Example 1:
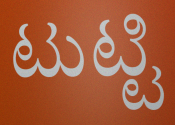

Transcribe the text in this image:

ಟುಟ್ಟಿ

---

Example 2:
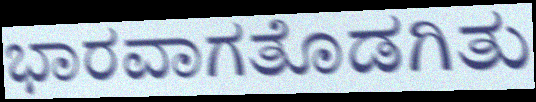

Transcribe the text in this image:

ಭಾರವಾಗತೊಡಗಿತು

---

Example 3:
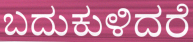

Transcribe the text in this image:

ಬದುಕುಳಿದರೆ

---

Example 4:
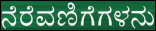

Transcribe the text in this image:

ನೆರೆವಣಿಗೆಗಳನು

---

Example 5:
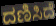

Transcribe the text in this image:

ದಣಿಸಿದೆ